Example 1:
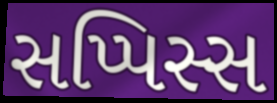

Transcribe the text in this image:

સપ્પિસ્સ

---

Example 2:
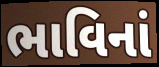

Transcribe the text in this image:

ભાવિનાં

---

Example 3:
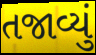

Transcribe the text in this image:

તજાવ્યું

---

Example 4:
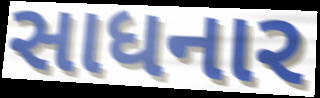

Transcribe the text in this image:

સાધનાર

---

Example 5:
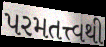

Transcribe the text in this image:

પરમતત્ત્વથી